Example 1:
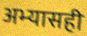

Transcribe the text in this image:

अभ्यासही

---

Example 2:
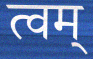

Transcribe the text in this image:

त्वम्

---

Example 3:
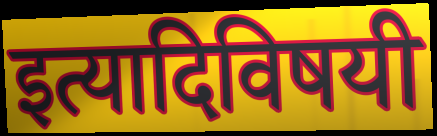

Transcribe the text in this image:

इत्यादिविषयी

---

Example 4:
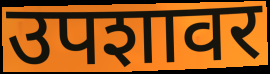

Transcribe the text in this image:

उपशावर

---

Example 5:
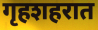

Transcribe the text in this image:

गृहशहरात